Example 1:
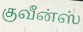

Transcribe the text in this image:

குவீன்ஸ்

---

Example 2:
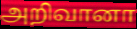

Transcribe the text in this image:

அறிவானா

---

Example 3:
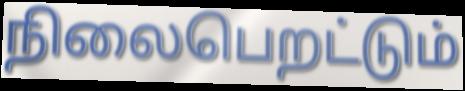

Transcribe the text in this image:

நிலைபெறட்டும்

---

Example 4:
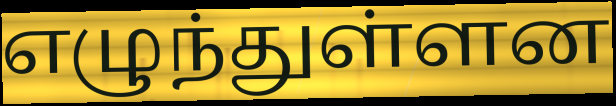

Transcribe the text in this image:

எழுந்துள்ளன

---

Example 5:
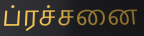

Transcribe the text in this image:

ப்ரச்சனை